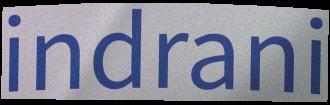
indrani